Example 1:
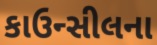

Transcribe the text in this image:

કાઉન્સીલના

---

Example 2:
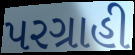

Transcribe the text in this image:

પરગ્રાહી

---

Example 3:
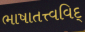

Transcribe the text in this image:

ભાષાતત્ત્વવિદ્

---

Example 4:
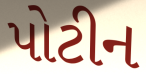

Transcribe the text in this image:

પોટીન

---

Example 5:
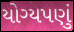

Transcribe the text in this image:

યોગ્યપણું